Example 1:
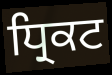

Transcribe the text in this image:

ਧ੍ਰਿਕਟ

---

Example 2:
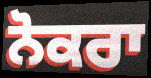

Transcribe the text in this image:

ਨੋਕਰਾ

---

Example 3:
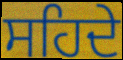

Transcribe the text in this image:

ਸਹਿਦੇ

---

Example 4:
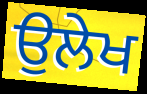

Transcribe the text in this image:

ਉਲੇਖ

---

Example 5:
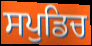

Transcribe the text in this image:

ਸਪੁਡਿਚ